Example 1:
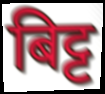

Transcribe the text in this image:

बिट्ट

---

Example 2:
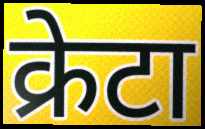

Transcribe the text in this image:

क्रेटा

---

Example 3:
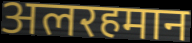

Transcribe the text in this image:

अलरहमान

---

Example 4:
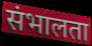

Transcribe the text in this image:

संभालता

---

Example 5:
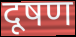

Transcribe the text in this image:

दूषण